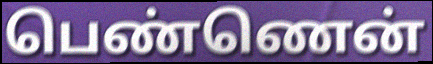
பெண்ணென்